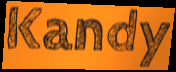
Kandy